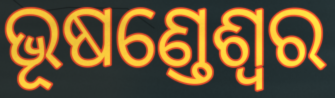
ଭୂଷଣ୍ଡେଶ୍ଵର